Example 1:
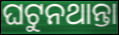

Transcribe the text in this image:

ଘଟୁନଥାନ୍ତା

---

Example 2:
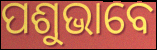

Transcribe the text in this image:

ପଶୁଭାବେ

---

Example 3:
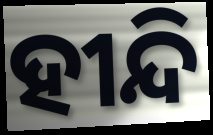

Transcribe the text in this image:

ହୀନ୍ଦି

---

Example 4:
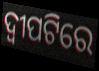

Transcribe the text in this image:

ଦ୍ୱୀପଟିରେ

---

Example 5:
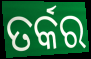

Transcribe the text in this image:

ତର୍କର